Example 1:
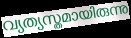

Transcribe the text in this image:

വ്യത്യസ്തമായിരുന്നു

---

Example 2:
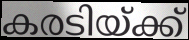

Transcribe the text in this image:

കരടിയ്ക്ക്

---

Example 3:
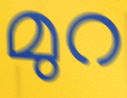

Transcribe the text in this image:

മുറ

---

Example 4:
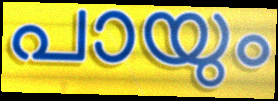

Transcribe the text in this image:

പായും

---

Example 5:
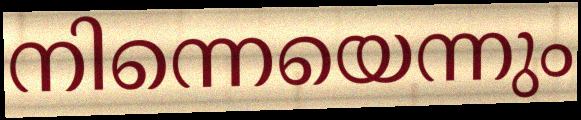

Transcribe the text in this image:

നിന്നെയെന്നും